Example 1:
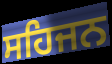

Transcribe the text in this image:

ਸਹਿਜਨ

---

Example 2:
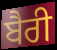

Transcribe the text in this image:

ਬੈਰੀ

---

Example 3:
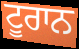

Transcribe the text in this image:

ਟੂਰਾਨ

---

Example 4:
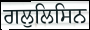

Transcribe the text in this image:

ਗਲੁਲਿਸਿਨ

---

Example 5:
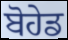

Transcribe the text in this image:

ਬੋਹੇਡ